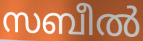
സബീൽ